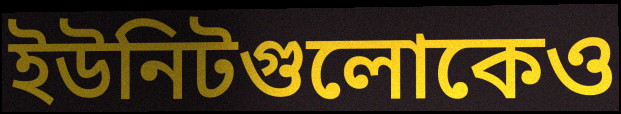
ইউনিটগুলোকেও